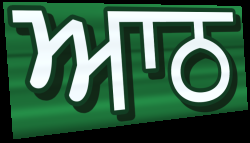
ਆਠ